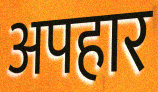
अपहार